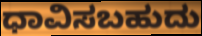
ಧಾವಿಸಬಹುದು